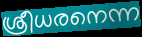
ശ്രീധരനെന്ന